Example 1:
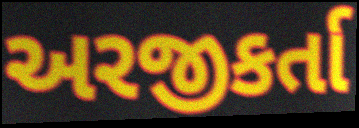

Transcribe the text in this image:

અરજીકર્તા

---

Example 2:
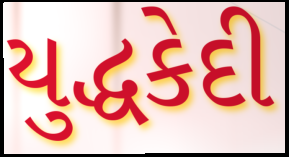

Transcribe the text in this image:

યુદ્ધકેદી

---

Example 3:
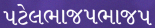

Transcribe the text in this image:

પટેલભાજપભાજપ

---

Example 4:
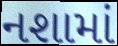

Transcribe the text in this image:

નશામાં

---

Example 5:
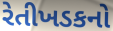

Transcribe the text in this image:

રેતીખડકનો